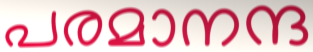
പരമാനന്ദ